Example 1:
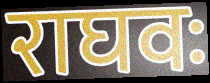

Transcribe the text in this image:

राघवः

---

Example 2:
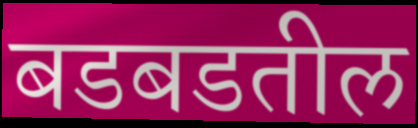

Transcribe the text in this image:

बडबडतील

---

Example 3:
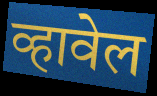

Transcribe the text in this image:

व्हावेल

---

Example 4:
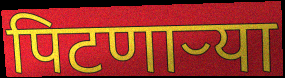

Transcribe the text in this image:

पिटणाऱ्या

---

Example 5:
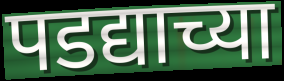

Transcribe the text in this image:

पडद्याच्या